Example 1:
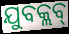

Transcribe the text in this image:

ଯୁବକ୍ଲବ୍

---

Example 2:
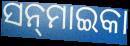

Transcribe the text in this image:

ସନ୍‌ମାଇକା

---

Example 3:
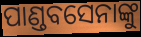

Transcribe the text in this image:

ପାଣ୍ଡବସେନାଙ୍କୁ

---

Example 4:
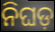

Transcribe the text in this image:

ନିଘଡ଼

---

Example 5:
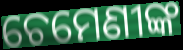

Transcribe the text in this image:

ଚେମେଣୀଙ୍କ